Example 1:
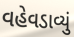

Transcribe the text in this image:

વહેવડાવ્યું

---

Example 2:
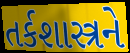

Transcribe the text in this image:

તર્કશાસ્ત્રને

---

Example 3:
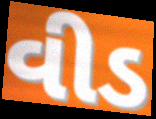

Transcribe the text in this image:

વીડ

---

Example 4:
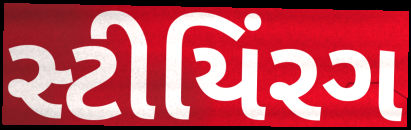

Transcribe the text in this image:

સ્ટીયિંરગ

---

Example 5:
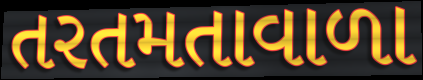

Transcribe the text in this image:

તરતમતાવાળા